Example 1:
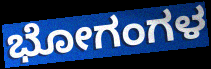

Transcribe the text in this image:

ಭೋಗಂಗಳ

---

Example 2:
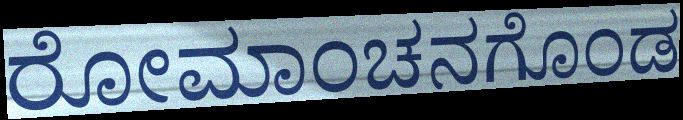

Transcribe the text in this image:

ರೋಮಾಂಚನಗೊಂಡ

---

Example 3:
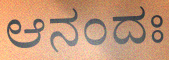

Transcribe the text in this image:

ಆನಂದಃ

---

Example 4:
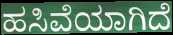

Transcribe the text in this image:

ಹಸಿವೆಯಾಗಿದೆ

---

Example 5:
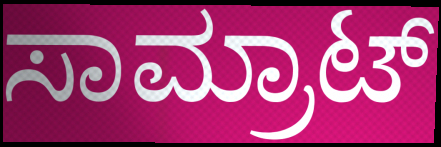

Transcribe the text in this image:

ಸಾಮ್ರಾಟ್